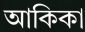
আকিকা